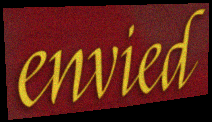
envied